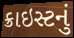
ક્રાઇસ્ટનું